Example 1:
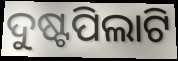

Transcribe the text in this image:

ଦୁଷ୍ଟପିଲାଟି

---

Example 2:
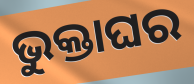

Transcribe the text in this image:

ଭୁକ୍ତାଘର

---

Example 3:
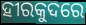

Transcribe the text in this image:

ହୀରକୁଦରେ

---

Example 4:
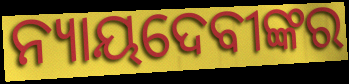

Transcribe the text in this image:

ନ୍ୟାୟଦେବୀଙ୍କର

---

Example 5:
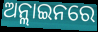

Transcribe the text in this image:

ଅନ୍ଲାଇନରେ